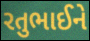
રતુભાઈને